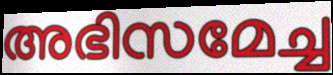
അഭിസമേച്ച